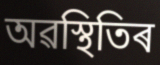
অৱস্থিতিৰ